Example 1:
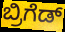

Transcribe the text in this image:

ಬ್ರಿಗೆಡ್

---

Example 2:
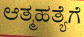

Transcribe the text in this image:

ಆತ್ಮಹತ್ಯೆಗೆ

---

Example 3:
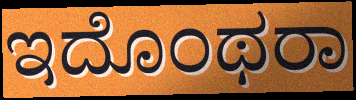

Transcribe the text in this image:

ಇದೊಂಥರಾ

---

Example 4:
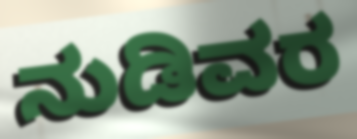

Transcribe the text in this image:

ನುಡಿವರ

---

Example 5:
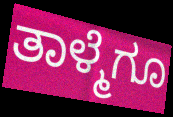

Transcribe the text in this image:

ತಾಳ್ಮೆಗೂ